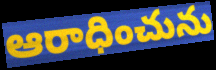
ఆరాధించును